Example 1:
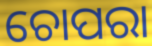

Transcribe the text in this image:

ଚୋପରା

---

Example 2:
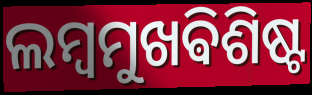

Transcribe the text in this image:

ଲମ୍ବମୁଖଵିଶିଷ୍ଟ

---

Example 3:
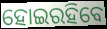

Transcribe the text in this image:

ହୋଇରହିବେ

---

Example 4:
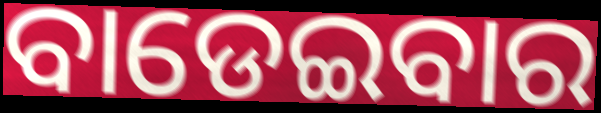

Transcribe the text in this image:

ବାଡେଇବାର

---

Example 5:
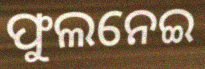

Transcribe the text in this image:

ଫୁଲନେଇ